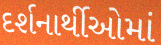
દર્શનાર્થીઓમાં